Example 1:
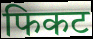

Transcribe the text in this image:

फिकट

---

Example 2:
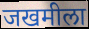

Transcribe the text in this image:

जखमीला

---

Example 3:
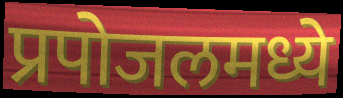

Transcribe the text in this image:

प्रपोजलमध्ये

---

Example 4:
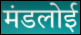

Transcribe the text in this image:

मंडलोई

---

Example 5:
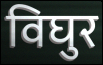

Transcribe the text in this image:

विघुर